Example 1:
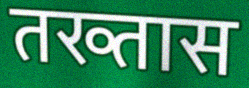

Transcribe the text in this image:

तख्तास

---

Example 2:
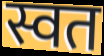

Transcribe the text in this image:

स्वत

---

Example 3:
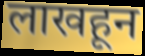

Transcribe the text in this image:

लाखहून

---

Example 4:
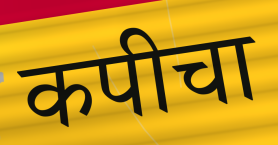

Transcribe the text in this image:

कपीचा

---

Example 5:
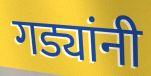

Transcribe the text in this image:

गड्यांनी